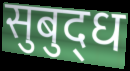
सुबुद्ध